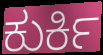
ಕುರ್ಕಿ